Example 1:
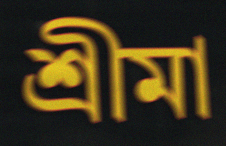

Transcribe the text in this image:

শ্রীমা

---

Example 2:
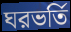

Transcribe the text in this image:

ঘরভর্তি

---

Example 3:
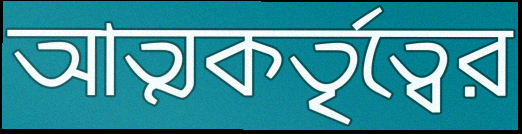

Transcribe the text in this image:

আত্মকর্তৃত্বের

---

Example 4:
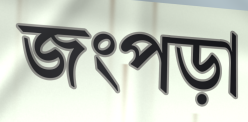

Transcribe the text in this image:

জংপড়া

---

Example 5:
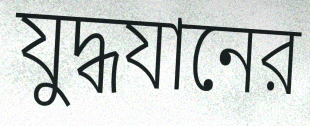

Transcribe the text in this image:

যুদ্ধযানের